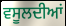
ਵਸੂਲਦੀਆਂ